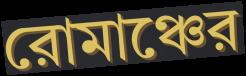
রোমাঞ্চের